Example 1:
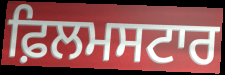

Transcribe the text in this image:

ਫ਼ਿਲਮਸਟਾਰ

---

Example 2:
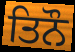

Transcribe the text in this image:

ਤਿਨੌ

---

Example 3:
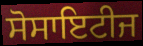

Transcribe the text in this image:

ਸੋਸਾਇਟੀਜ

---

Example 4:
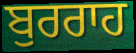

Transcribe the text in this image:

ਬੁਰਰਾਹ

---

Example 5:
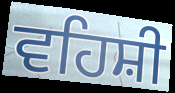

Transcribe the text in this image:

ਵਹਿਸ਼ੀ